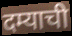
दम्याची